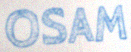
OSAM